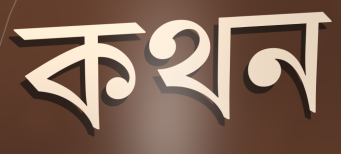
কথন